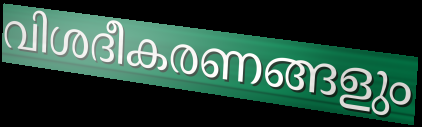
വിശദീകരണങ്ങളും